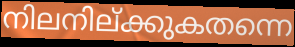
നിലനില്ക്കുകതന്നെ